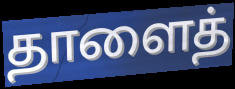
தாளைத்